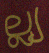
ല്ല്യ